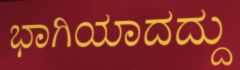
ಭಾಗಿಯಾದದ್ದು